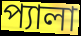
প্যালা